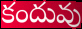
కందువు